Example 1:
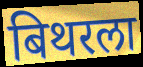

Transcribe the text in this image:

बिथरला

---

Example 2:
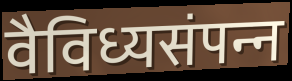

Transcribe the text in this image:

वैविध्यसंपन्न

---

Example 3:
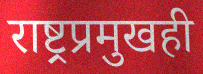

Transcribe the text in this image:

राष्ट्रप्रमुखही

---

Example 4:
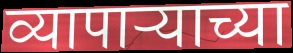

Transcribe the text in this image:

व्यापाऱ्याच्या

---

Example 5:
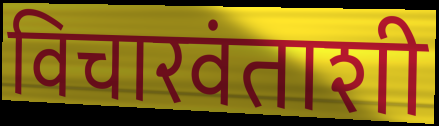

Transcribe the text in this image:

विचारवंताशी